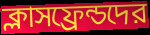
ক্লাসফ্রেন্ডদের